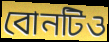
বোনটিও